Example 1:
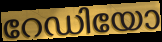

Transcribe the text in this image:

റേഡിയോ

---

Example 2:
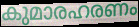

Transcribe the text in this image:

കുമാരഹരണം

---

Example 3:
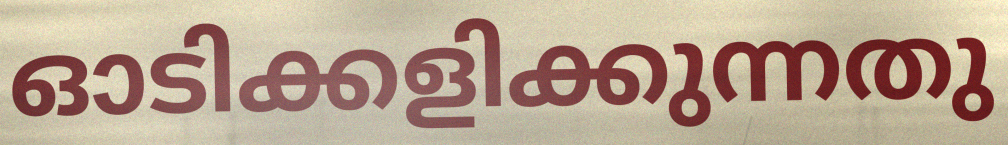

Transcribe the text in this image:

ഓടിക്കളിക്കുന്നതു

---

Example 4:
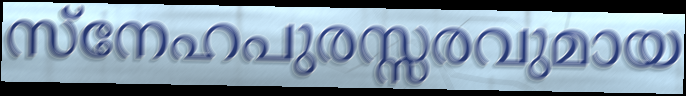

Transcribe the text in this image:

സ്നേഹപുരസ്സരവുമായ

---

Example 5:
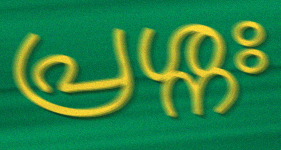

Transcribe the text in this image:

പ്രശ്നഃ